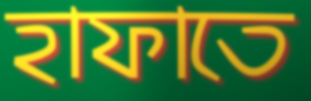
হাফাতে